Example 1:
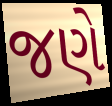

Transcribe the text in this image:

જણે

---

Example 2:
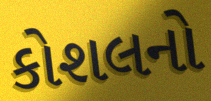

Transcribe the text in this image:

કોશલનો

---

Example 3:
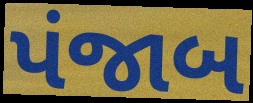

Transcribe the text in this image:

પંજાબ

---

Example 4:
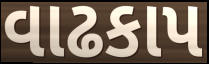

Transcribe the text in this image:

વાઢકાપ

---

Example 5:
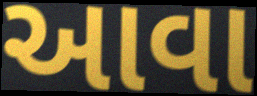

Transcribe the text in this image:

આવા